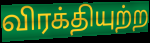
விரக்தியுற்ற